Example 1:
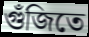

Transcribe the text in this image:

গুঁজিতে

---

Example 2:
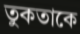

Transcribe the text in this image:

তুকতাকে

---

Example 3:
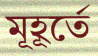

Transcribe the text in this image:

মূহূর্তে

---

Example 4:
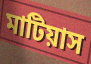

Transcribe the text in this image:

মাটিয়াস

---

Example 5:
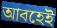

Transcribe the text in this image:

আবহেই